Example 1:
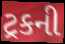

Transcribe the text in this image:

ટ્રકની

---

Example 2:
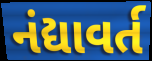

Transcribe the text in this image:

નંદ્યાવર્ત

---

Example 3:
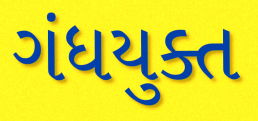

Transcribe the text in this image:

ગંધયુક્ત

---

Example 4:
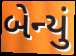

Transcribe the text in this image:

બેન્યું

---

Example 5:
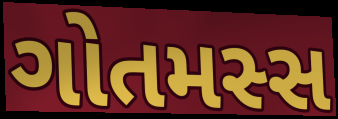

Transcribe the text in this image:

ગોતમસ્સ